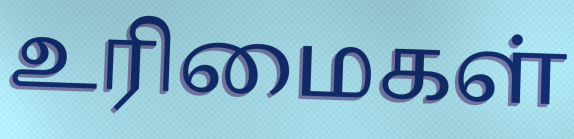
உரிமைகள்